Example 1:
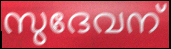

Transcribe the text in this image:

സുദേവന്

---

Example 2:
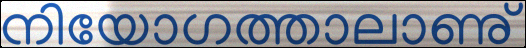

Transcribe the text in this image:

നിയോഗത്താലാണു്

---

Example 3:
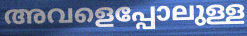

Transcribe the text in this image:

അവളെപ്പോലുള്ള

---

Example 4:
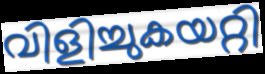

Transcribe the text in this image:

വിളിച്ചുകയറ്റി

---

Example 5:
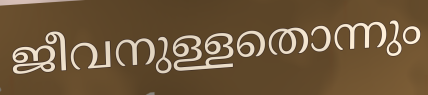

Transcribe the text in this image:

ജീവനുള്ളതൊന്നും